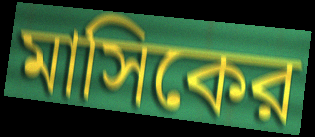
মাসিকের